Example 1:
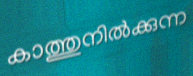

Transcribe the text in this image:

കാത്തുനിൽക്കുന്ന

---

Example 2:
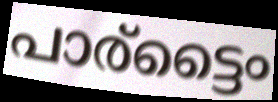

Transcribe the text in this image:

പാര്ട്ടൈം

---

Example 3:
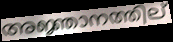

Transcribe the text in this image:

അജ്ഞാനത്തില്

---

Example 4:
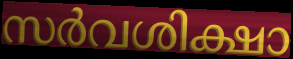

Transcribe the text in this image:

സർവശിക്ഷാ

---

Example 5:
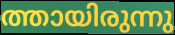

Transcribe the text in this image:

ത്തായിരുന്നു